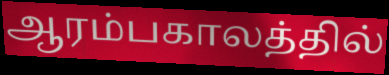
ஆரம்பகாலத்தில்